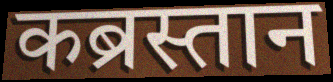
कब्रस्तान